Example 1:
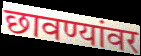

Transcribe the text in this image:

छावण्यांवर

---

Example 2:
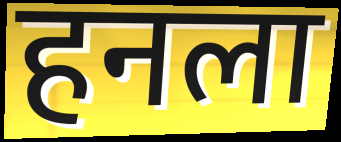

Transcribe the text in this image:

हनला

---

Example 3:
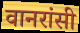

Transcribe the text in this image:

वानरांसी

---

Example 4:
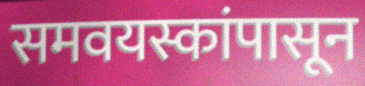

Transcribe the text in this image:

समवयस्कांपासून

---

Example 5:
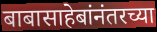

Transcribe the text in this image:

बाबासाहेबांनंतरच्या